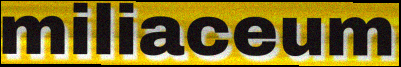
miliaceum